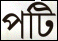
পটি